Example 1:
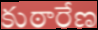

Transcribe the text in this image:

కుఠారేణ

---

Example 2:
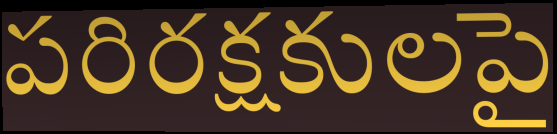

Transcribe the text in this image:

పరిరక్షకులపై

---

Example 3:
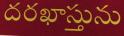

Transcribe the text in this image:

దరఖాస్తును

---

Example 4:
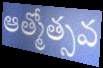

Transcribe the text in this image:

ఆత్మోత్సవ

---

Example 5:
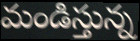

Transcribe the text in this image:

మండిస్తున్న